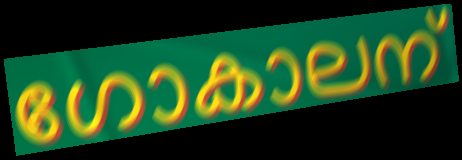
ഗോകാലന്